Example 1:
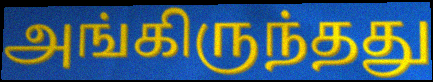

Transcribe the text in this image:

அங்கிருந்தது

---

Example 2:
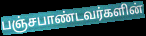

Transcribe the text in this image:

பஞ்சபாண்டவர்களின்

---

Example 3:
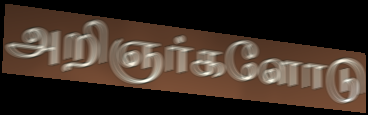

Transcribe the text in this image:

அறிஞர்களோடு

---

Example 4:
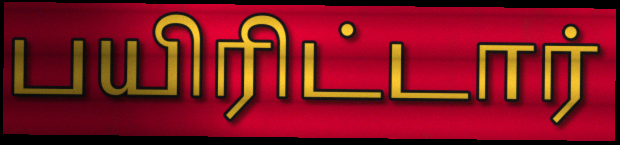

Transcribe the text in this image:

பயிரிட்டார்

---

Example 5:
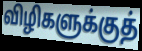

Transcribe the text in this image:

விழிகளுக்குத்